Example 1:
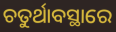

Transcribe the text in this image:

ଚତୁର୍ଥାବସ୍ଥାରେ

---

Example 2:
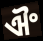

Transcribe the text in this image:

ଐଂ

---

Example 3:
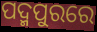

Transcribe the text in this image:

ପଦ୍ମପୁରରେ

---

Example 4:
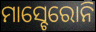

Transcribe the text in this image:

ମାସ୍ଚେରୋନି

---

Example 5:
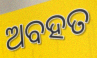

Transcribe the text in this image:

ଅବହତ